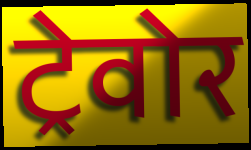
ट्रेवोर